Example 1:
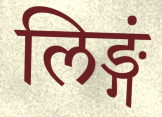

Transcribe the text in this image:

लिङ्गं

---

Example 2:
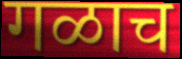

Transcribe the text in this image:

गळाच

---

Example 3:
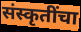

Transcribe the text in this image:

संस्कृतींचा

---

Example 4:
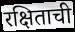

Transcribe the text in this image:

रक्षिताची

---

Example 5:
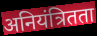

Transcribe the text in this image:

अनियंत्रितता